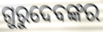
ଗୁରୁଦେବଙ୍କର